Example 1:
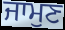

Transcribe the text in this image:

ਜਾਮੁਣ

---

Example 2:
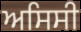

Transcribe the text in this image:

ਅਸਿਸੀ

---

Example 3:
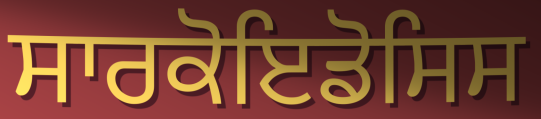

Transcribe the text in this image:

ਸਾਰਕੋਇਡੋਸਿਸ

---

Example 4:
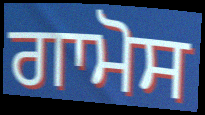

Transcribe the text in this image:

ਗਾਮੋਸ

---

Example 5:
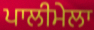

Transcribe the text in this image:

ਪਾਲੀਮੇਲਾ